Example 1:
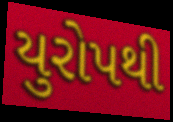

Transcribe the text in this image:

યુરોપથી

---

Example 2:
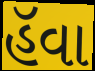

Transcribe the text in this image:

હૅવા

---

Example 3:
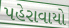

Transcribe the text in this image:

પહેરાવાયો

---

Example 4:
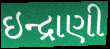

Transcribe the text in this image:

ઇન્દ્રાણી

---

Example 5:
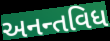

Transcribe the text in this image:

અનન્તવિધ